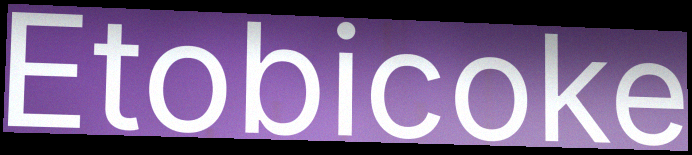
Etobicoke